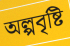
অল্পবৃষ্টি